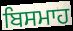
ਬਿਸਮਾਹ